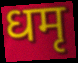
धमृ